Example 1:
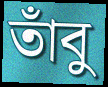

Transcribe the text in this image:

তাঁবু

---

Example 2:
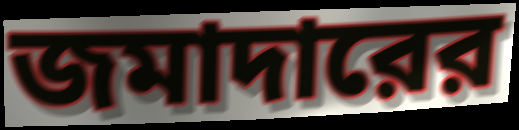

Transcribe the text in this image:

জমাদারের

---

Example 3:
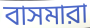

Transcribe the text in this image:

বাসমারা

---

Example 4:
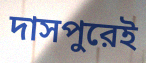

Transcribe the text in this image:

দাসপুরেই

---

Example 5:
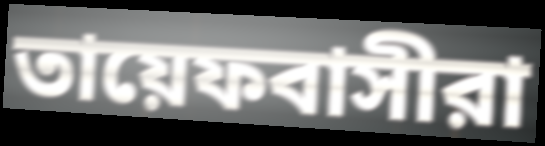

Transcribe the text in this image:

তায়েফবাসীরা